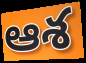
ఆశ